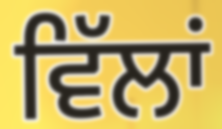
ਵਿੱਲਾਂ